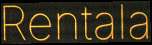
Rentala